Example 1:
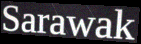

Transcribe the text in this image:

Sarawak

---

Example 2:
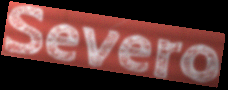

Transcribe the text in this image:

Severo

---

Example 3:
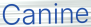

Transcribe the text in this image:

Canine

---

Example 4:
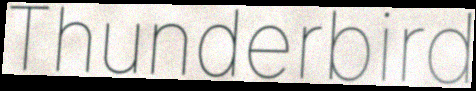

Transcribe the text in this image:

Thunderbird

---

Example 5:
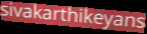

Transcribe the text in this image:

sivakarthikeyans